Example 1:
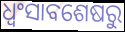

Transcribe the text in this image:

ଧ୍ୱଂସାବଶେଷରୁ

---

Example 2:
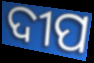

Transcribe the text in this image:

ଦୀପ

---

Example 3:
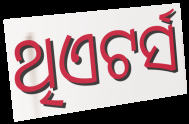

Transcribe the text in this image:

ଥିଏଟର୍ସ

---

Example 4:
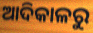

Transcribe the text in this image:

ଆଦିକାଳରୁ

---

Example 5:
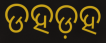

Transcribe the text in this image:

ଡହଡ଼ହ